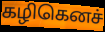
கழிகெனச்